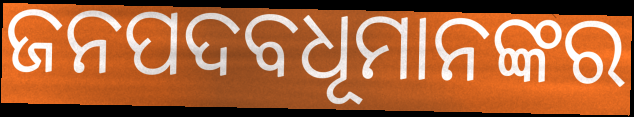
ଜନପଦବଧୂମାନଙ୍କର